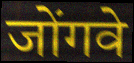
जोंगवे